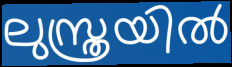
ലുസ്ത്രയിൽ